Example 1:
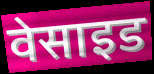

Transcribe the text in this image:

वेसाइड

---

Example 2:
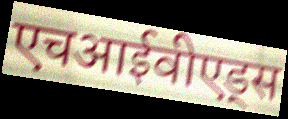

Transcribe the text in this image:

एचआईवीएड्स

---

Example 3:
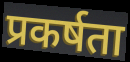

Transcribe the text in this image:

प्रकर्षता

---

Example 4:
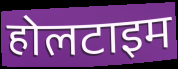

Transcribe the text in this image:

होलटाइम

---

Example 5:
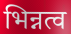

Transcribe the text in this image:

भिन्नत्व